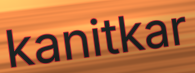
kanitkar